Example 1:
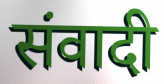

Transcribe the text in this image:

संवादी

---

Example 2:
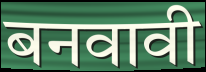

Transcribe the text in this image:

बनवावी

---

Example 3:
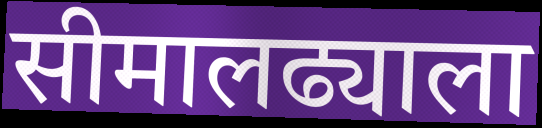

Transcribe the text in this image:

सीमालढ्याला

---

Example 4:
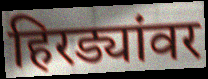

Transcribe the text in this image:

हिरड्यांवर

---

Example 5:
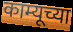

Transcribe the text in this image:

काम्यूच्या